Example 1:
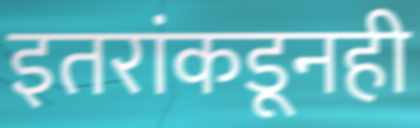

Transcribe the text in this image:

इतरांकडूनही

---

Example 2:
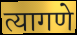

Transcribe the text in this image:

त्यागणे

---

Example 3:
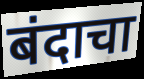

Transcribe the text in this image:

बंदाचा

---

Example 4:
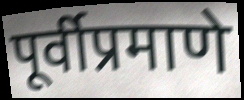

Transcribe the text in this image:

पूर्वीप्रमाणे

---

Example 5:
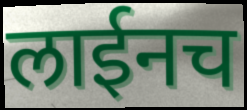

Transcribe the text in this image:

लाईनच